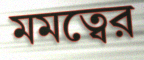
মমত্বের